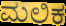
ಮಲಿಕ